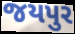
જયપુર